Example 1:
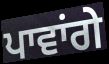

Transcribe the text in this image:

ਪਾਵਾਂਗੇ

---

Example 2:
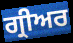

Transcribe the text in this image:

ਗ੍ਰੀਅਰ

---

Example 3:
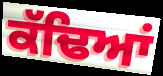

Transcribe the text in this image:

ਕੱਢਿਆਂ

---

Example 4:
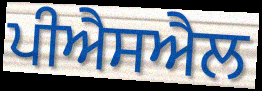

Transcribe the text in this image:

ਪੀਐਸਐਲ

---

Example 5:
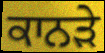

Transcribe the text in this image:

ਕਾਨੜੇ